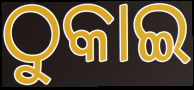
ଠୁକାଇ